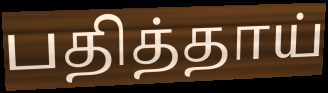
பதித்தாய்